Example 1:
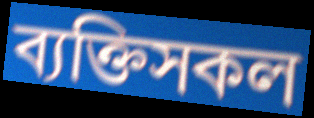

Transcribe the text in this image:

ব্যক্তিসকল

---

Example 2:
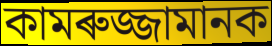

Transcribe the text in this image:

কামৰুজ্জামানক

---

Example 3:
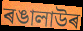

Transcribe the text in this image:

ৰঙালাউৰ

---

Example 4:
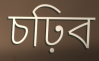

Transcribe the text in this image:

চঢ়িব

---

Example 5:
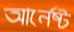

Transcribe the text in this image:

আৰ্নেষ্ট